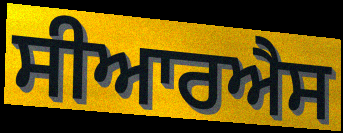
ਸੀਆਰਐਸ